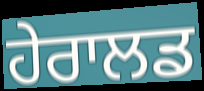
ਹੇਰਾਲਡ